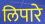
लिपारे